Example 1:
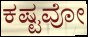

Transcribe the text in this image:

ಕಷ್ಟವೋ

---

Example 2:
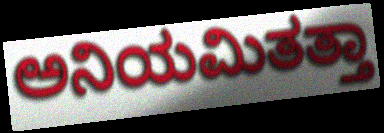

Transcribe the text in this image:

ಅನಿಯಮಿತತ್ತಾ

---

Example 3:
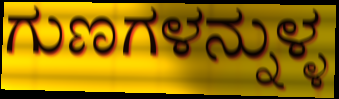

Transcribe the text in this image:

ಗುಣಗಳನ್ನುಳ್ಳ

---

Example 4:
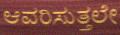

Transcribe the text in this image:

ಆವರಿಸುತ್ತಲೇ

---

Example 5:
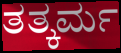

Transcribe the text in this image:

ತತ್ಕರ್ಮ